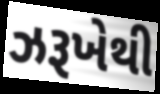
ઝરૂખેથી